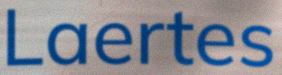
Laertes